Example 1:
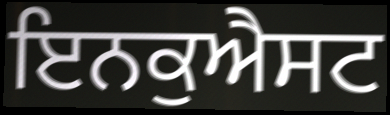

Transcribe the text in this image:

ਇਨਕੁਐਸਟ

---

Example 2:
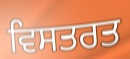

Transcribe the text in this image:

ਵਿਸਤਰਤ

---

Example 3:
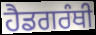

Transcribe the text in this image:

ਹੈਡਗਰੰਥੀ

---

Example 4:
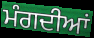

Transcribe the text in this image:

ਮੰਗਦੀਆਂ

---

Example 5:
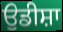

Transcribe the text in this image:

ਉਡੀਸ਼ਾ